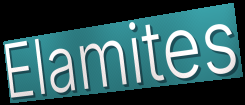
Elamites